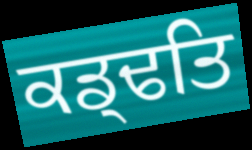
ਕਡ੍ਢਤਿ